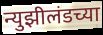
न्युझीलंडच्या